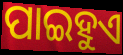
ପାଇହୁଏ